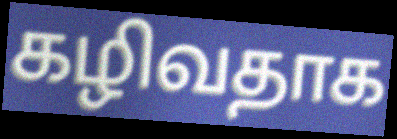
கழிவதாக